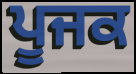
ਪੂਜਕ